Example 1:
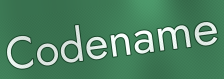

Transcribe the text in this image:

Codename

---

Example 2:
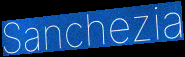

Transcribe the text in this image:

Sanchezia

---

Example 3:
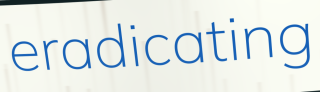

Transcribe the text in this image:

eradicating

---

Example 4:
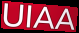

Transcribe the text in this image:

UIAA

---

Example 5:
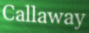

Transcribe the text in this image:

Callaway